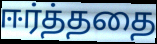
ஈர்த்ததை